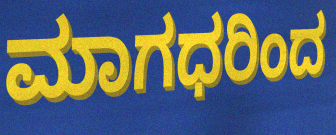
ಮಾಗಧರಿಂದ